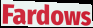
Fardows